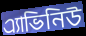
এ্যাভিনিউ